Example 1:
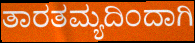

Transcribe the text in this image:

ತಾರತಮ್ಯದಿಂದಾಗಿ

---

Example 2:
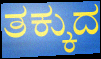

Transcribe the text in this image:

ತಕ್ಕುದ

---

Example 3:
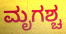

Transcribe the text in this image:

ಮೃಗಶ್ಚ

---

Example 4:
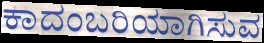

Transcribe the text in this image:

ಕಾದಂಬರಿಯಾಗಿಸುವ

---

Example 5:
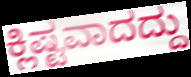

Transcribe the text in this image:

ಕ್ಲಿಷ್ಟವಾದದ್ದು